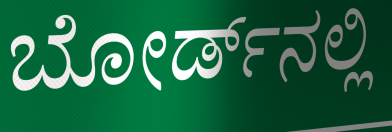
ಬೋರ್ಡ್‌ನಲ್ಲಿ